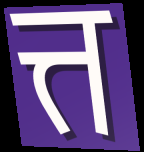
त्त